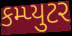
કમ્પ્યુટર